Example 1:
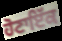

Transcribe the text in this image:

ਹੋਣਾਇੱਕ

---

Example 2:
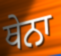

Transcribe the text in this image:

ਥੇਨਾ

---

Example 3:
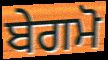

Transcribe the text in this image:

ਬੇਗਮੋ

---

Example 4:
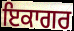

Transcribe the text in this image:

ਇਕਾਗਰ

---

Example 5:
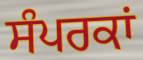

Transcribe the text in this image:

ਸੰਪਰਕਾਂ